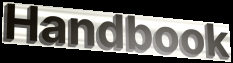
Handbook